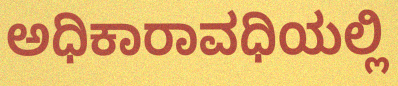
ಅಧಿಕಾರಾವಧಿಯಲ್ಲಿ